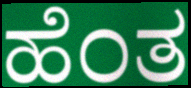
ಹೆಂತ